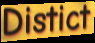
Distict